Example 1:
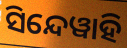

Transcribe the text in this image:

ସିନ୍ଦେୱାହି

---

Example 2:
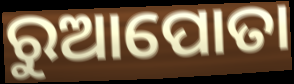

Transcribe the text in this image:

ରୁଆପୋତା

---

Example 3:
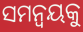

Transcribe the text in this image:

ସମନ୍ବୟକୁ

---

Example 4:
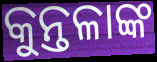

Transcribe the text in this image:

କୁନ୍ତଳାଙ୍କ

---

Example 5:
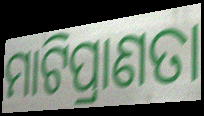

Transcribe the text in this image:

ମାଟିପ୍ରାଣତା